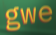
gwe